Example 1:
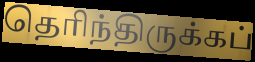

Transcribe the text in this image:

தெரிந்திருக்கப்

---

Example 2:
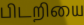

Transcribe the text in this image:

பிடறியை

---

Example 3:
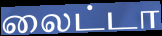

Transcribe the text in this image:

லைட்டா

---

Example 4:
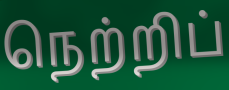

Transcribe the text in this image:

நெற்றிப்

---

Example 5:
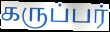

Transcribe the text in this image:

கருப்பர்